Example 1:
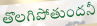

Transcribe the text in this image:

తొలగిపోతుందనీ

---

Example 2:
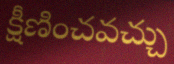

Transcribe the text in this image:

క్షీణించవచ్చు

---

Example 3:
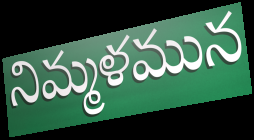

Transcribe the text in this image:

నిమ్మళమున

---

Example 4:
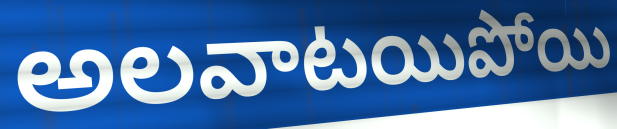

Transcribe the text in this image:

అలవాటయిపోయి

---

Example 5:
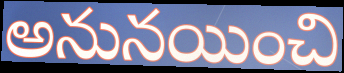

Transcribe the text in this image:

అనునయించి